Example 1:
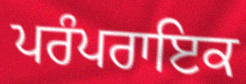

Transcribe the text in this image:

ਪਰੰਪਰਾਇਕ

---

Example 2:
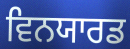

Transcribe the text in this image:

ਵਿਨਯਾਰਡ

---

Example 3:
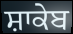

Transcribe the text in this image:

ਸ਼ਾਕੇਬ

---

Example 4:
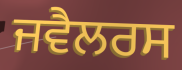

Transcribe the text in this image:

ਜਵੈਲਰਸ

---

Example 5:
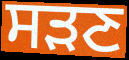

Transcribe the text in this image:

ਸੜਣ